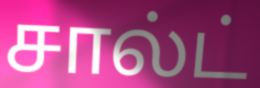
சால்ட்